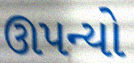
ઊપન્યો